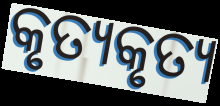
କୃତ୍ଯକୃତ୍ଯ